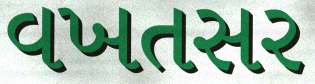
વખતસર